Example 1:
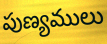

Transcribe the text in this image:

పుణ్యములు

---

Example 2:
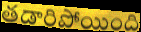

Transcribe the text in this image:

తడారిపోయింది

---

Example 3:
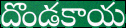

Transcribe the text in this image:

దొండకాయ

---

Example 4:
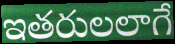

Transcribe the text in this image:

ఇతరులలాగే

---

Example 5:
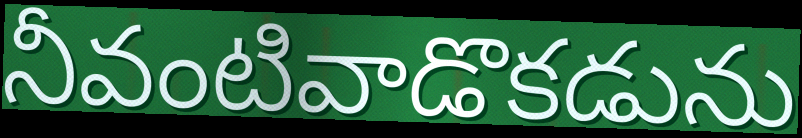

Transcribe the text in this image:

నీవంటివాడొకడును